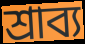
শ্রাব্য